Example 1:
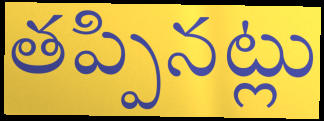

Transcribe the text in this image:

తప్పినట్లు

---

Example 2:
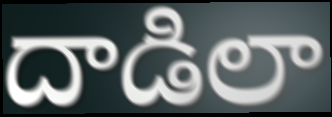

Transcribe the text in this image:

దాడిలా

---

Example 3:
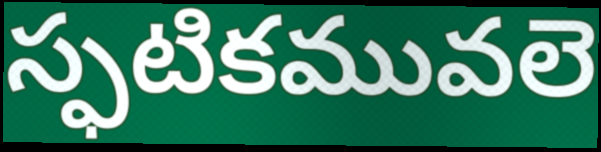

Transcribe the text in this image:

స్ఫటికమువలె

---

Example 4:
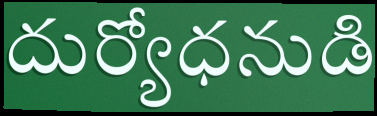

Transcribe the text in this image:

దుర్యోధనుడి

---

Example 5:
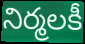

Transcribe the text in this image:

నిర్మలకీ